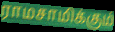
ராமசாமிக்கும்